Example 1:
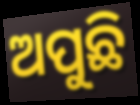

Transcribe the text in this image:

ଅପୁଛି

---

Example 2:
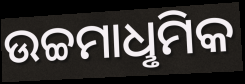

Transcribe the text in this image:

ଉଚ୍ଚମାଧୢମିକ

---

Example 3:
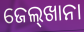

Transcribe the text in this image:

ଜେଲ୍‌ଖାନା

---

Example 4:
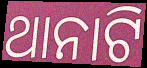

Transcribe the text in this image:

ଥାନାଟି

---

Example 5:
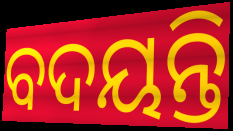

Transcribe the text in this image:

ବଦୟନ୍ତି